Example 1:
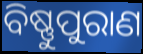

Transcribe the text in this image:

ବିଷ୍ଣୁପୁରାଣ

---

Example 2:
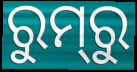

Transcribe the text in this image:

ରୁମ୍‌ରୁ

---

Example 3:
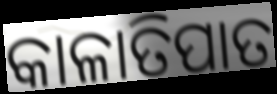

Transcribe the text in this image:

କାଳାତିପାତ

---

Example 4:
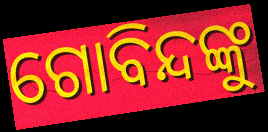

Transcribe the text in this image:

ଗୋବିନ୍ଦଙ୍କୁ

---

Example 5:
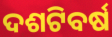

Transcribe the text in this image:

ଦଶଟିବର୍ଷ